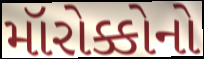
મૉરોક્કોનો